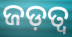
ଜଡ଼ତ୍ଵ